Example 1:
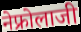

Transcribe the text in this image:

नेफ्रोलाजी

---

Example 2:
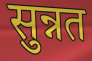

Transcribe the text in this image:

सुन्नत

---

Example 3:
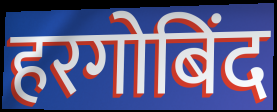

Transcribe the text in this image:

हरगोबिंद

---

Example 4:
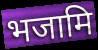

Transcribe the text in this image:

भजामि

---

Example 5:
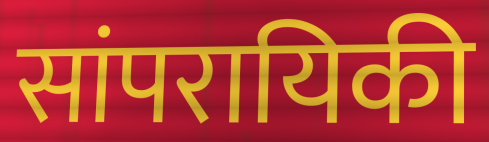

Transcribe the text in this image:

सांपरायिकी